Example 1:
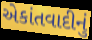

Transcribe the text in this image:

એકાંતવાદીનું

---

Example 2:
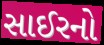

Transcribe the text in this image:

સાઈરનો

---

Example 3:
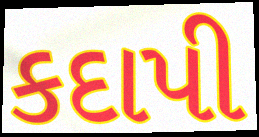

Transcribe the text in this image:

કદાપી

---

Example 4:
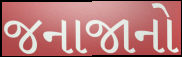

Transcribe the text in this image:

જનાજાનો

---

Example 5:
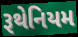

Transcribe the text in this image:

રૂથેનિયમ